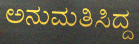
ಅನುಮತಿಸಿದ್ದ